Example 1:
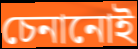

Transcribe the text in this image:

চেনানোই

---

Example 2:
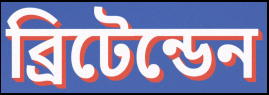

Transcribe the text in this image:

ব্রিটেন্ডেন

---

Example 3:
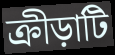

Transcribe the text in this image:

ক্রীড়াটি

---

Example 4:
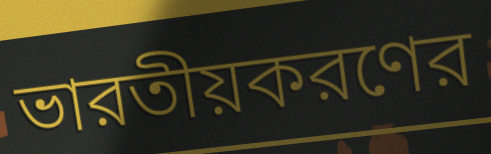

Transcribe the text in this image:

ভারতীয়করণের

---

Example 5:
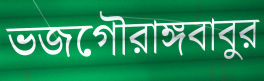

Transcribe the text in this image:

ভজগৌরাঙ্গবাবুর